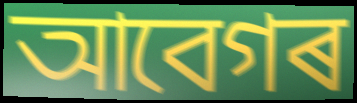
আবেগৰ